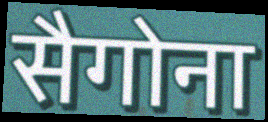
सैगोना